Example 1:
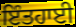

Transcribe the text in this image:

ਇੰਤਹਾਈ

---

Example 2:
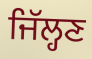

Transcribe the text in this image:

ਜਿੱਲ੍ਹਣ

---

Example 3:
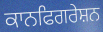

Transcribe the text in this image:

ਕਾਨਫਿਗਰੇਸ਼ਨ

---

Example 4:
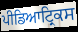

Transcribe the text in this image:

ਪੀਡਿਆਟ੍ਰਿਕਸ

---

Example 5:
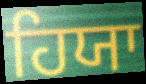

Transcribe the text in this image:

ਹਿਯਾ